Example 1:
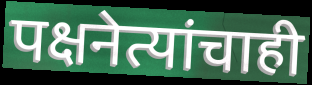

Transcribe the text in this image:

पक्षनेत्यांचाही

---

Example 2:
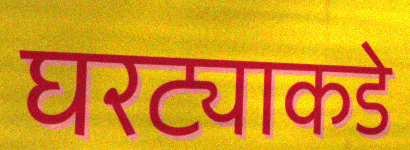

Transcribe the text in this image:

घरट्याकडे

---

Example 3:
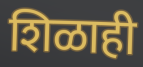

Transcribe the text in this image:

शिळाही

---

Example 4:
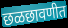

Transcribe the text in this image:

छळछावणीत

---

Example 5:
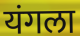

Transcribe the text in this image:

यंगला